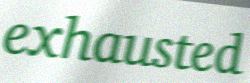
exhausted